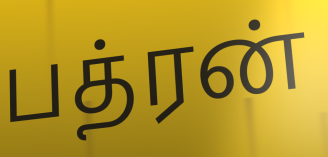
பத்ரன்